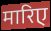
मारिए